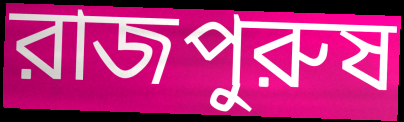
রাজপুরুষ